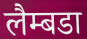
लैम्बडा